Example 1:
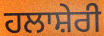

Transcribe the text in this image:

ਹਲਾਸ਼ੇਰੀ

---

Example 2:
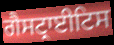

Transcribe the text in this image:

ਗੈਸਟ੍ਰਾਈਟਿਸ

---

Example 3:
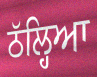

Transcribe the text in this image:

ਠੱਲ੍ਹਿਆ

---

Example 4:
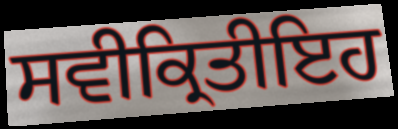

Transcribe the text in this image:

ਸਵੀਕ੍ਰਿਤੀਇਹ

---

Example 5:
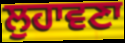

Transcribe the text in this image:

ਲੁਹਾਵਣਾ